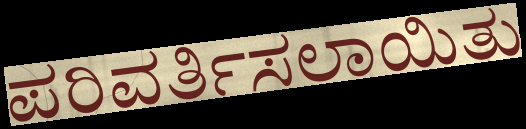
ಪರಿವರ್ತಿಸಲಾಯಿತು